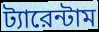
ট্যারেন্টাম